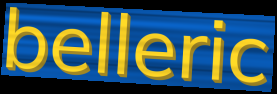
belleric